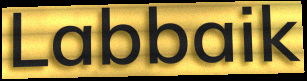
Labbaik